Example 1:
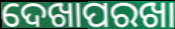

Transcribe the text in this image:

ଦେଖାପରଖା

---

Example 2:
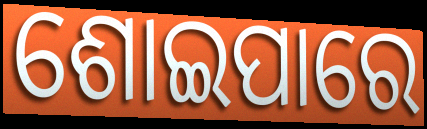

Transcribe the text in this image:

ଶୋଇପାରେ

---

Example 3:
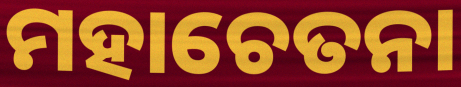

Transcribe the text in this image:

ମହାଚେତନା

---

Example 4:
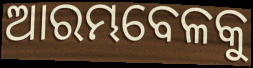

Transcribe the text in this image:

ଆରମ୍ଭବେଳକୁ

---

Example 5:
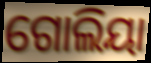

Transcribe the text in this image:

ଗୋଲିୟା